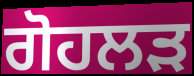
ਗੋਹਲੜ